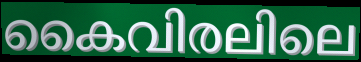
കൈവിരലിലെ